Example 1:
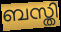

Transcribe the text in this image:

ബസ്തി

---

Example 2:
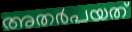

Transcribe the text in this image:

അതർപയത്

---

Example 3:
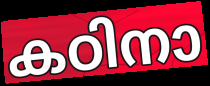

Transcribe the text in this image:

കഠിനാ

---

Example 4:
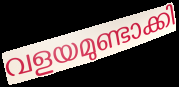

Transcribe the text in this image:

വളയമുണ്ടാക്കി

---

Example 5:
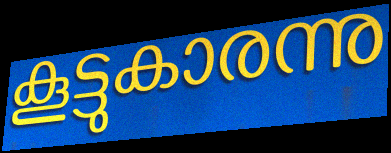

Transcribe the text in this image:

കൂട്ടുകാരന്നു